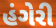
હંગેરી